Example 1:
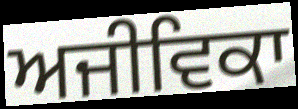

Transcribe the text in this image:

ਅਜੀਵਿਕਾ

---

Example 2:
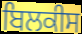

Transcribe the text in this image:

ਬਿਲਕੀਸ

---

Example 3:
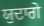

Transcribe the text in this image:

ਯੁਦਾਗੇ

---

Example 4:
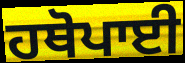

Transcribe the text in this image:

ਹਥੋਪਾਈ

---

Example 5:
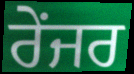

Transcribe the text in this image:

ਰੇਂਜਰ